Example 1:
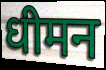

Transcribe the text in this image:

धीमन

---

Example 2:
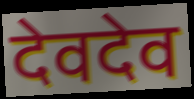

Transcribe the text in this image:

देवदेव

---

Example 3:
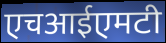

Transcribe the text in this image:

एचआईएमटी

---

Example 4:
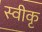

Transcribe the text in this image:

स्वीकृ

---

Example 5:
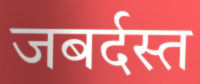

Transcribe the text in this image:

जबर्दस्त